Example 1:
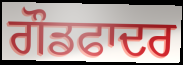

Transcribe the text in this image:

ਗੌਡਫਾਦਰ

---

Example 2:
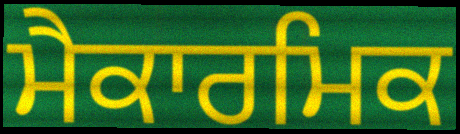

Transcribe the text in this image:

ਮੈਕਾਰਮਿਕ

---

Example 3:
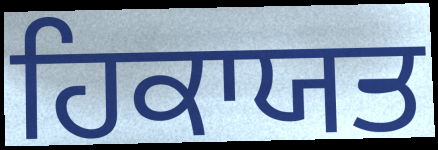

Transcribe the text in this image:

ਹਿਕਾਯਤ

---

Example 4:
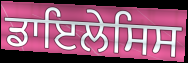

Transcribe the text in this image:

ਡਾਇਲੇਸਿਸ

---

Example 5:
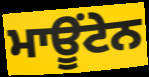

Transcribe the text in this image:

ਮਾਊਂਟੇਨ